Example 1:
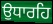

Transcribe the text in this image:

ਉਧਾਰਹਿ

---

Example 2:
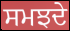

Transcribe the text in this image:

ਸਮਝਦੇ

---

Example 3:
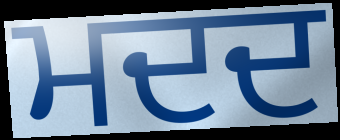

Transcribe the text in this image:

ਮਦਦ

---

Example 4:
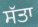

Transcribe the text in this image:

ਸੱਤਾ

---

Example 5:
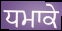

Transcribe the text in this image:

ਧਮਾਕੇ